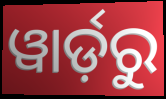
ୱାର୍ଡ଼ରୁ